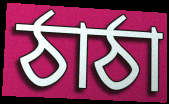
ঠাঠা